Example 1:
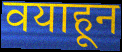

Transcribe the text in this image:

वयाहून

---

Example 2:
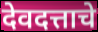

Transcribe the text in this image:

देवदत्ताचे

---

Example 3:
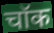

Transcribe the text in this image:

चॉक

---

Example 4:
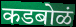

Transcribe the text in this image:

कडबोळं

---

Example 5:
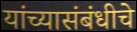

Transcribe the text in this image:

यांच्यासंबंधीचे